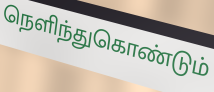
நெளிந்துகொண்டும்